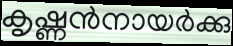
കൃഷ്ണൻനായർക്കു